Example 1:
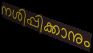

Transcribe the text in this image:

നശിപ്പിക്കാനും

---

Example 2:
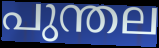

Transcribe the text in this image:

പുന്തല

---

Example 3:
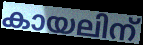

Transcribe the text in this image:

കായലിന്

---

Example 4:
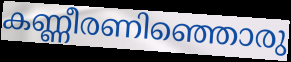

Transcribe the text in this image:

കണ്ണീരണിഞ്ഞൊരു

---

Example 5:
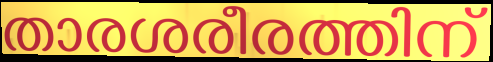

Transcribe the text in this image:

താരശരീരത്തിന്